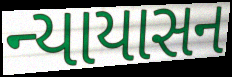
ન્યાયાસન